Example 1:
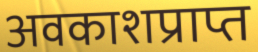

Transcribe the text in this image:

अवकाशप्राप्त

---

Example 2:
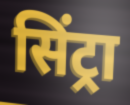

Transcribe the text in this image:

सिंट्रा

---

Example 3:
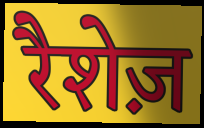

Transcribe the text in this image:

रैशेज़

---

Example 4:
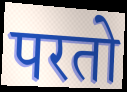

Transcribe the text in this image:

परतो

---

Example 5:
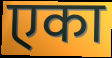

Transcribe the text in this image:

एका